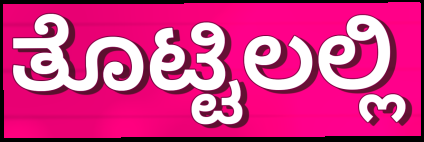
ತೊಟ್ಟಿಲಲ್ಲಿ